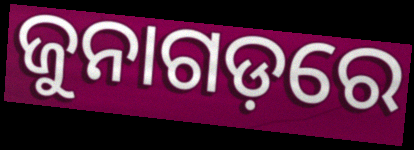
ଜୁନାଗଡ଼ରେ